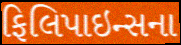
ફિલિપાઇન્સના